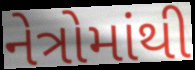
નેત્રોમાંથી